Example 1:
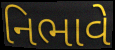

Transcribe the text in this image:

નિભાવે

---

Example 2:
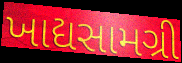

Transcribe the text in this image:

ખાદ્યસામગ્રી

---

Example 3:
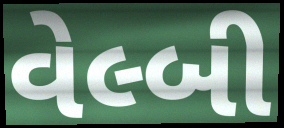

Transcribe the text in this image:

વેલ્બી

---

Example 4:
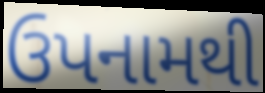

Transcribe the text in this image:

ઉપનામથી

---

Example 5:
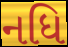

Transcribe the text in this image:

નધિ